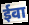
ईवा